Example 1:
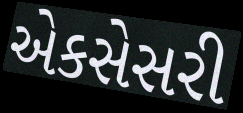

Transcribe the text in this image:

એકસેસરી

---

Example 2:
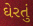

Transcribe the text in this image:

ઘેરતું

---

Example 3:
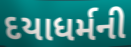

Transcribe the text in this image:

દયાધર્મની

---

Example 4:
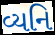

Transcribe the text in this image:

વ્યનિ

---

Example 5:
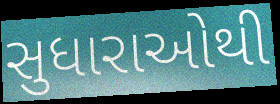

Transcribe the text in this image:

સુધારાઓથી